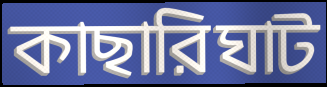
কাছারিঘাট